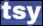
tsy